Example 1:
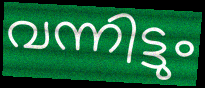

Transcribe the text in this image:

വന്നിട്ടും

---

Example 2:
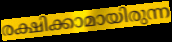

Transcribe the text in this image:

രക്ഷിക്കാമായിരുന്ന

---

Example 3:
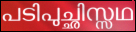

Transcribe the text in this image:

പടിപുച്ഛിസ്സഥ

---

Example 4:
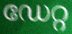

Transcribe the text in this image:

ഡേറ്റ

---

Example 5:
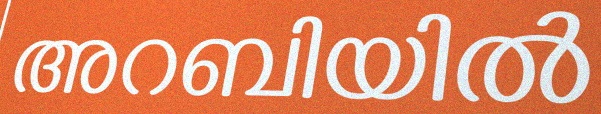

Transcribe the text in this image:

അറബിയിൽ